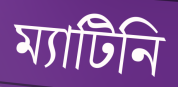
ম্যাটিনি